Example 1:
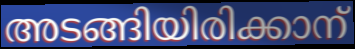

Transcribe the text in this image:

അടങ്ങിയിരിക്കാന്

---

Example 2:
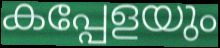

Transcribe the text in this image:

കപ്പേളയും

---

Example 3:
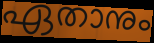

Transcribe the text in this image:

ഏതാനും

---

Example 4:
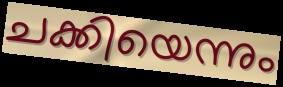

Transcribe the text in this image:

ചക്കിയെന്നും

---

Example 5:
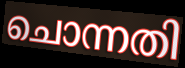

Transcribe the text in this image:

ചൊന്നതി